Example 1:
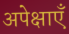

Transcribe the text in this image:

अपेक्षाएँ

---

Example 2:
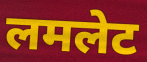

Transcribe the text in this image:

लमलेट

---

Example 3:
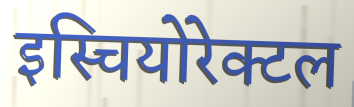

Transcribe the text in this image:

इस्चियोरेक्टल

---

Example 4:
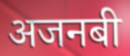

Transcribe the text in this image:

अजनबी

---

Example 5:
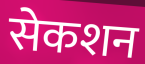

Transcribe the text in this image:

सेकशन